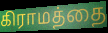
கிராமத்தை